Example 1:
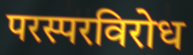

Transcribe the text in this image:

परस्परविरोध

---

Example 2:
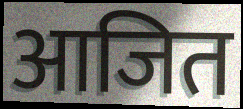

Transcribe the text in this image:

आजित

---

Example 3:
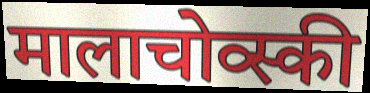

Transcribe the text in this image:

मालाचोव्स्की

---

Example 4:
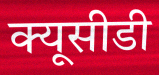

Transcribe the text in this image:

क्यूसीडी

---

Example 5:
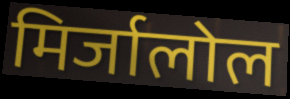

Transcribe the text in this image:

मिर्जालोल